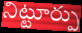
నిట్టూర్పు